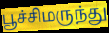
பூச்சிமருந்து